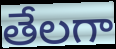
తేలగా